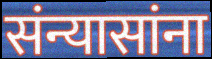
संन्यासांना